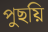
পুছয়ি